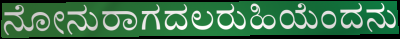
ನೋನುರಾಗದಲರುಹಿಯೆಂದನು